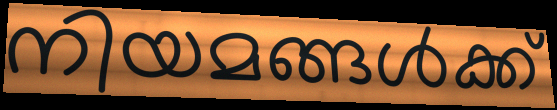
നിയമങ്ങൾക്ക്